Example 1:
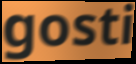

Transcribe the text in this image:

gosti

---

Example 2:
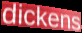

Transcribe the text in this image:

dickens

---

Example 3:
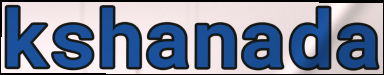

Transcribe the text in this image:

kshanada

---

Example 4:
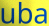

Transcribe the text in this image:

uba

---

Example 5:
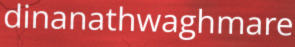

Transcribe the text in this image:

dinanathwaghmare